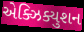
એક્ઝિક્યુશન